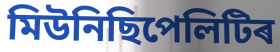
মিউনিছিপেলিটিৰ